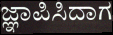
ಜ್ಞಾಪಿಸಿದಾಗ